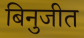
बिनुजीत